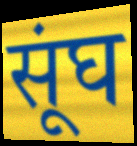
सूंघ